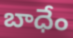
బాధేం